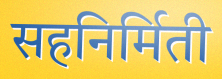
सहनिर्मिती